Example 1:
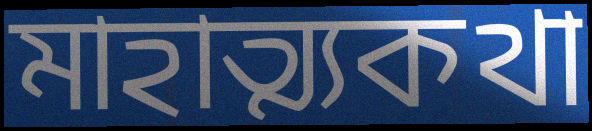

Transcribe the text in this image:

মাহাত্ম্যকথা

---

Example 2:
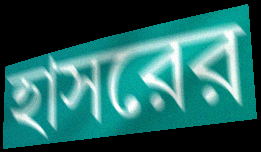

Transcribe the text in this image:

হাসরের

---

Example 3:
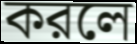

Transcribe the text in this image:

করলে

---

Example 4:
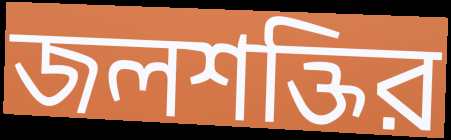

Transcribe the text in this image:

জলশক্তির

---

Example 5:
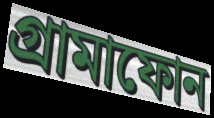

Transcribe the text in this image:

গ্রামাফোন